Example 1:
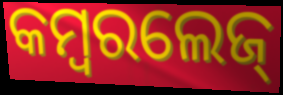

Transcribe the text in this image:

କମ୍ବରଲେଜ୍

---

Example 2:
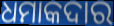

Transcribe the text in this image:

ଧମାକଦାର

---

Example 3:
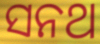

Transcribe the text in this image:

ସନଥ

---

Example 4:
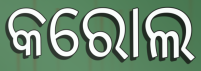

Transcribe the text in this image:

କରୋଲ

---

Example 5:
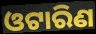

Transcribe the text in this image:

ଓଟାରିଣ